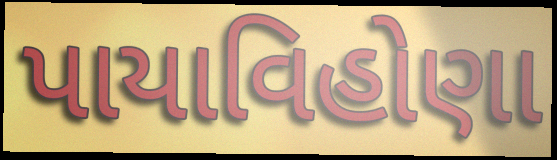
પાયાવિહોણા